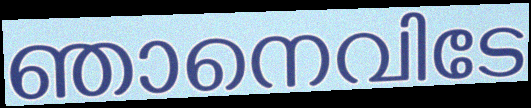
ഞാനെവിടേ